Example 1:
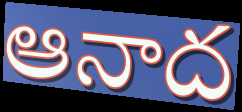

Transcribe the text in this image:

ఆనాద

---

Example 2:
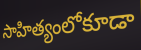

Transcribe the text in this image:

సాహిత్యంలోకూడా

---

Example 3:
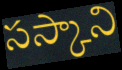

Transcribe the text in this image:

సస్కాని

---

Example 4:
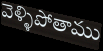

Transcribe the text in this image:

వెళ్ళిపోతాము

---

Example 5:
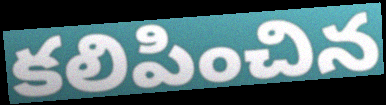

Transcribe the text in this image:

కలిపించిన